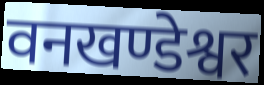
वनखण्डेश्वर